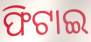
ଫିଟାଇ